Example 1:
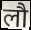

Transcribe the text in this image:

लौ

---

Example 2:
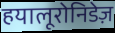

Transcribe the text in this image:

हयालूरोनिडेज़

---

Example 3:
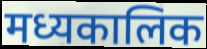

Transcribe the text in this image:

मध्यकालिक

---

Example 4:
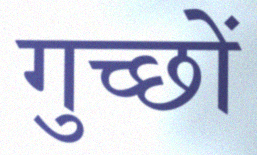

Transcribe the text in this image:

गुच्छों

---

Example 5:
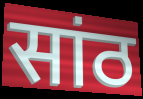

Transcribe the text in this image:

सांठ